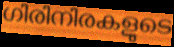
ഗിരിനിരകളുടെ